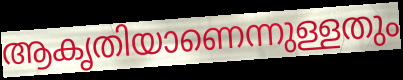
ആകൃതിയാണെന്നുള്ളതും